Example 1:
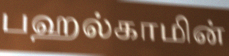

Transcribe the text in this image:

பஹல்காமின்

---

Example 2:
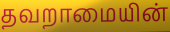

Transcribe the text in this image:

தவறாமையின்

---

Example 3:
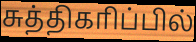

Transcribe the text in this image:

சுத்திகரிப்பில்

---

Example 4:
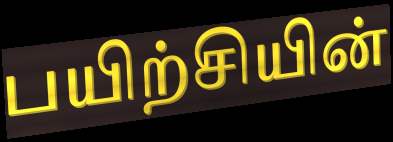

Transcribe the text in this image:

பயிற்சியின்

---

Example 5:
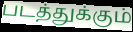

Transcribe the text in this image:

படத்துக்கும்